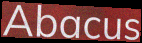
Abacus